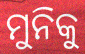
ମୁନିକୁ